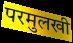
परमुलखी